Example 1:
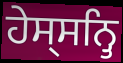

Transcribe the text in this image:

ਹੇਸ੍ਸਨ੍ਤਿ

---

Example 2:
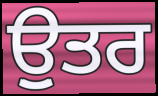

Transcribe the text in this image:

ਉੁਤਰ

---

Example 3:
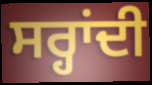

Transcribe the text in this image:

ਸਰ੍ਹਾਂਦੀ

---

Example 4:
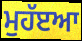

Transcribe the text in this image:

ਮੁਹੱੲਆ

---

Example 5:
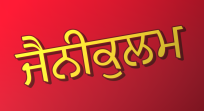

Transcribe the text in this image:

ਜੈਨੀਕੁਲਮ